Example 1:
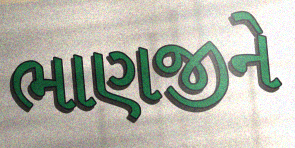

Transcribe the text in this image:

ભાણજીને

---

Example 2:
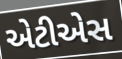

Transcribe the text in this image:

એટીએસ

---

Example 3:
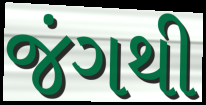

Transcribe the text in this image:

જંગથી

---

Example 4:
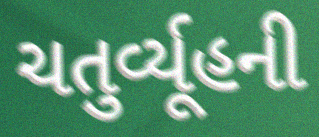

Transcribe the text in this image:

ચતુર્વ્યૂહની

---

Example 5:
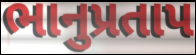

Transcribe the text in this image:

ભાનુપ્રતાપ